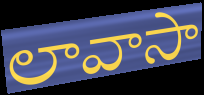
లావాసా